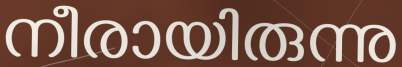
നീരായിരുന്നു